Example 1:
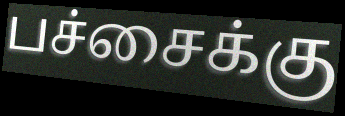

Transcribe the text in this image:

பச்சைக்கு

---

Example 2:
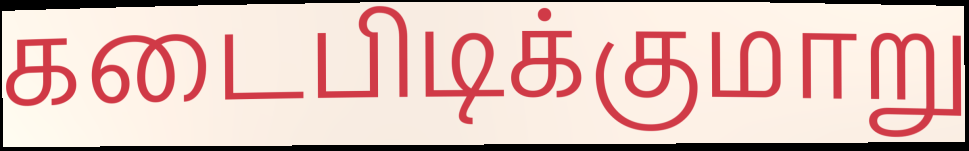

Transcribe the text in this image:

கடைபிடிக்குமாறு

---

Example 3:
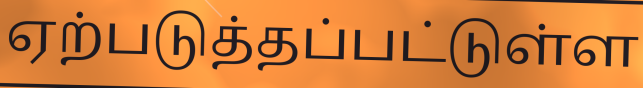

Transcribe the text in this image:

ஏற்படுத்தப்பட்டுள்ள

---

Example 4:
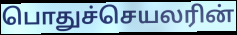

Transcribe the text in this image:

பொதுச்செயலரின்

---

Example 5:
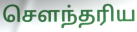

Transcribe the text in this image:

சௌந்தரிய